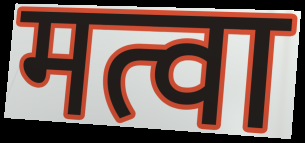
मत्वा